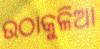
ଉଠାକୁଳିଆ